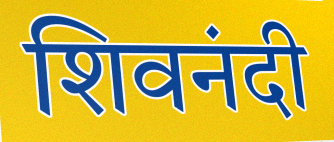
शिवनंदी